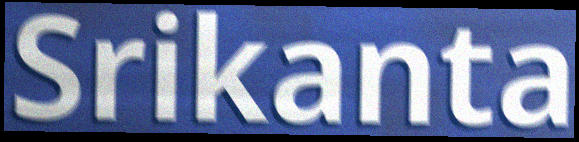
Srikanta